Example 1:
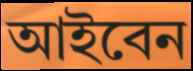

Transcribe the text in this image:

আইবেন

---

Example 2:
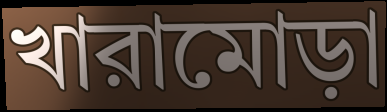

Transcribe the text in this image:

খারামোড়া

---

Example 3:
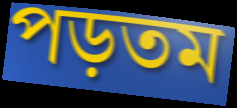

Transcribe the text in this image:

পড়তম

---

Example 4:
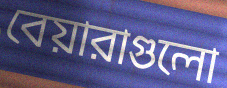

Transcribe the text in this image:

বেয়ারাগুলো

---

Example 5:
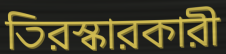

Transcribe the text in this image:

তিরস্কারকারী